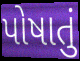
પોષાતું